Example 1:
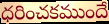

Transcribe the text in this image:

ధరించకముందే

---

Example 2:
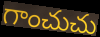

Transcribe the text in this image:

గాంచుచు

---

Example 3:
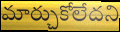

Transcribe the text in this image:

మార్చుకోలేదని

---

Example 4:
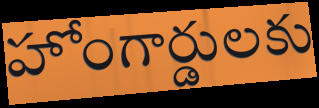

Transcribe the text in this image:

హోంగార్డులకు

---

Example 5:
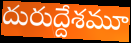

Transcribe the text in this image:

దురుద్దేశమూ